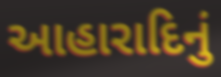
આહારાદિનું